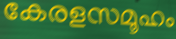
കേരളസമൂഹം